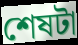
শেষটা